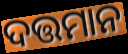
ଦତ୍ତମାନ